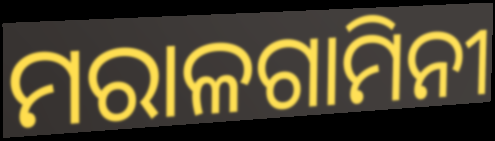
ମରାଳଗାମିନୀ